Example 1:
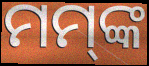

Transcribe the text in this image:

ମମ୍‍ଙ୍କ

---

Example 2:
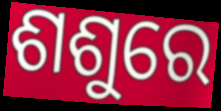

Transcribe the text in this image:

ଶଶୁରେ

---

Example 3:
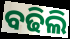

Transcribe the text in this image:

ବଢିଲି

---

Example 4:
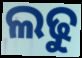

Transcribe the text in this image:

ଲଢୁ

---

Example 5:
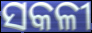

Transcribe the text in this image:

ସକଳୀ